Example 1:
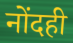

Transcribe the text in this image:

नोंदही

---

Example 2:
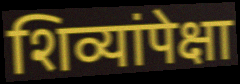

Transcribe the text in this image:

शिव्यांपेक्षा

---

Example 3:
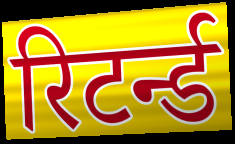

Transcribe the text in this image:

रिटर्न्ड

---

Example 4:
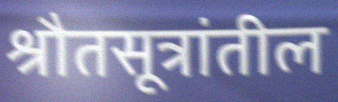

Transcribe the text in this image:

श्रौतसूत्रांतील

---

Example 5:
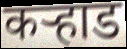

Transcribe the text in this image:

कऱ्हाड